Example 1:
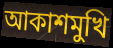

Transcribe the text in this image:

আকাশমুখি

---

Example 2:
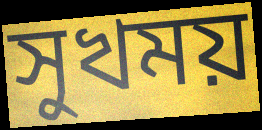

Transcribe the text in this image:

সুখময়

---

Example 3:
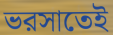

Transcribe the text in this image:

ভরসাতেই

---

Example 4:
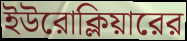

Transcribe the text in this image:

ইউরোক্লিয়ারের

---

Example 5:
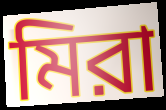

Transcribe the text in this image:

মিরা